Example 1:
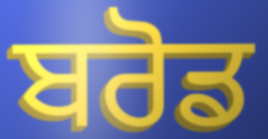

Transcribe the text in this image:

ਬਰੋਡ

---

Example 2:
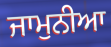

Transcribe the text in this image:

ਜਾਮੁਨੀਆ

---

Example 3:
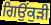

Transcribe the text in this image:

ਗਿਉਂਕੁੜੀ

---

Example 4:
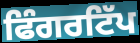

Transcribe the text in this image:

ਫਿੰਗਰਟਿੱਪ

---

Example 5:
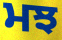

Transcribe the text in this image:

ਮਝ